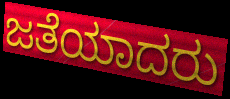
ಜತೆಯಾದರು